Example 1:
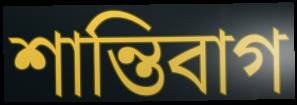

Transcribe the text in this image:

শান্তিবাগ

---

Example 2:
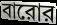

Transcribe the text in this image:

বারোর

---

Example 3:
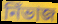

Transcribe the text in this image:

নিঁভাজ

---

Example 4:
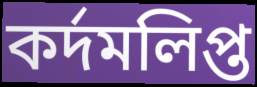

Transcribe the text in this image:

কর্দমলিপ্ত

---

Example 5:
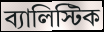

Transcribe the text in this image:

ব্যালিস্টিক